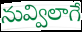
నువ్విలాగే